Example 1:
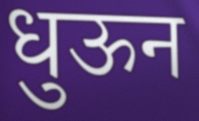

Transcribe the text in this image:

धुऊन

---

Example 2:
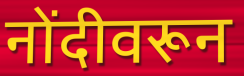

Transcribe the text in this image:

नोंदीवरून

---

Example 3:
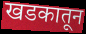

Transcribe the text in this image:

खडकातून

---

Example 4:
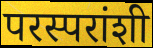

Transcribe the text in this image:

परस्परांशी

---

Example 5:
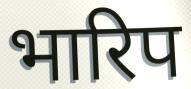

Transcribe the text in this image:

भारिप